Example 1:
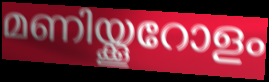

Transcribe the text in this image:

മണിയ്ക്കൂറോളം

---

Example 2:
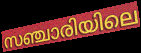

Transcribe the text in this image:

സഞ്ചാരിയിലെ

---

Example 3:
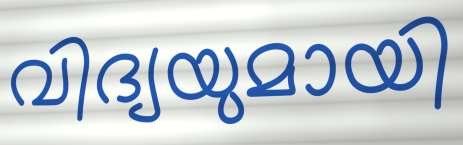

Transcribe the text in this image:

വിദ്യയുമായി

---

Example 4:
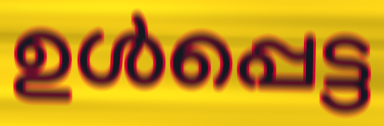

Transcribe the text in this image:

ഉൾപ്പെട്ട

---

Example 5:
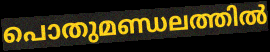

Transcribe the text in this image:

പൊതുമണ്ഡലത്തിൽ